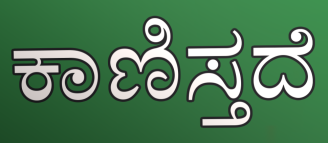
ಕಾಣಿಸ್ತದೆ